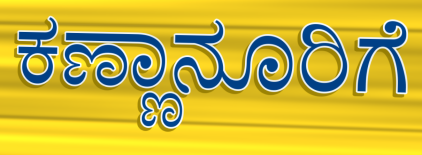
ಕಣ್ಣಾನೂರಿಗೆ